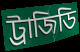
ট্রাজিডি